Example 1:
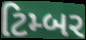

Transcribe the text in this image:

ટિમ્બર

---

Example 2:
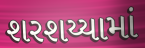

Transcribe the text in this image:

શરશય્યામાં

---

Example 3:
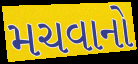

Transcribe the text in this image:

મચવાનો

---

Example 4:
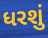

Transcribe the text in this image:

ધરશું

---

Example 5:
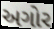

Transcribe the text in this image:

અગોર